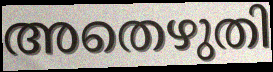
അതെഴുതി